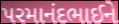
પરમાનંદભાઈને